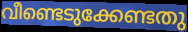
വീണ്ടെടുക്കേണ്ടതു